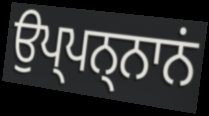
ਉਪ੍ਪਨ੍ਨਾਨਂ